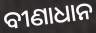
ବୀଣାଧାନ